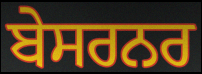
ਬੇਸਰਨਰ